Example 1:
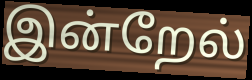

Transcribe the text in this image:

இன்றேல்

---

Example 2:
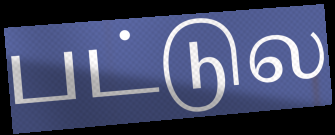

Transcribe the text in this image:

பட்டுல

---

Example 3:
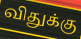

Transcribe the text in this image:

விதுக்கு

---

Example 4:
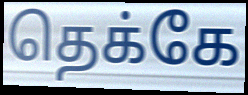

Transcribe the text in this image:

தெக்கே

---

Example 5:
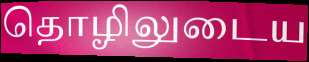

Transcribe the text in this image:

தொழிலுடைய